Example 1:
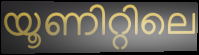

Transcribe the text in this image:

യൂണിറ്റിലെ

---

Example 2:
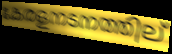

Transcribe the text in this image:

കേരളനടനത്തില്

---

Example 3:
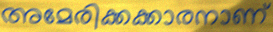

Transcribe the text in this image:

അമേരിക്കക്കാരനാണ്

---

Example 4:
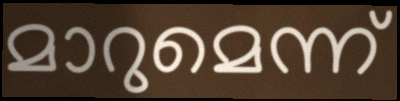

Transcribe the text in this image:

മാറുമെന്ന്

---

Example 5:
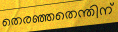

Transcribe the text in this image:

തെരഞ്ഞതെന്തിന്